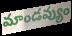
మాండవ్యుం